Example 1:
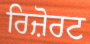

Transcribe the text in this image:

ਰਿਜ਼ੋਰਟ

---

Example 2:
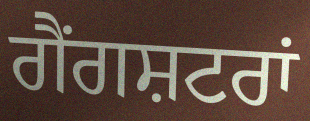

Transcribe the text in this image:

ਗੈਂਗਸ਼ਟਰਾਂ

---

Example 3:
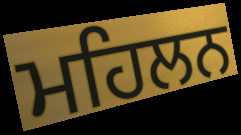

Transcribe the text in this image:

ਮਹਿਲਨ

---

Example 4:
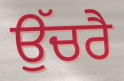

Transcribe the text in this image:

ਉੱਚਰੈ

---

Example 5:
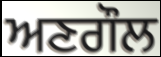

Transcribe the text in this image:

ਅਣਗੌਲ